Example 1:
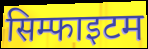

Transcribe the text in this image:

सिम्फाइटम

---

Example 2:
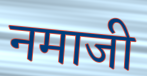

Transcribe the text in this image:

नमाजी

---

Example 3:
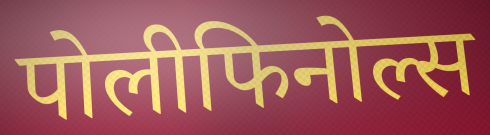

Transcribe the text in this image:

पोलीफिनोल्स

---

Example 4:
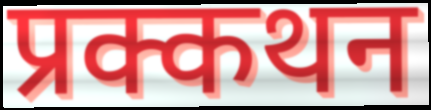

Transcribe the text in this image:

प्रक्कथन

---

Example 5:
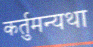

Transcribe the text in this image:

कर्तुमन्यथा